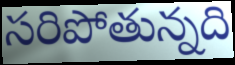
సరిపోతున్నది